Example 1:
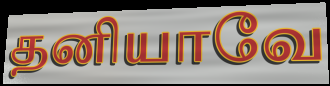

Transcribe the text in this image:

தனியாவே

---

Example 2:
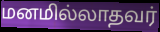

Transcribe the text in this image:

மனமில்லாதவர்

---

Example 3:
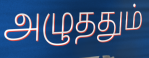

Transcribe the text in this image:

அழுததும்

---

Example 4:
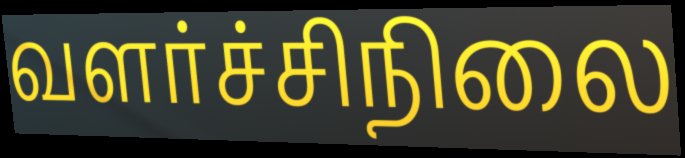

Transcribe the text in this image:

வளர்ச்சிநிலை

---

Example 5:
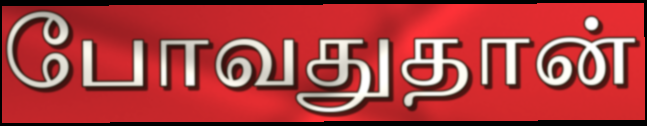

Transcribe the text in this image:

போவதுதான்